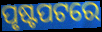
ପୃଷ୍ଟପଟରେ